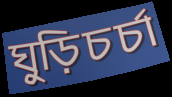
ঘুড়িচর্চা